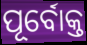
ପୂର୍ବୋକ୍ତ